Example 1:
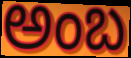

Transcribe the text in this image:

అంబ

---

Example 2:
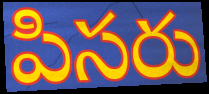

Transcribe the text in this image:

పిసరు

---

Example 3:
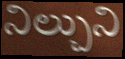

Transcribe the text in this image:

నిల్చుని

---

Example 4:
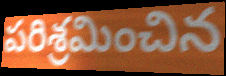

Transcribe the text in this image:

పరిశ్రమించిన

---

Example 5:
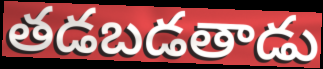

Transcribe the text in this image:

తడబడతాడు